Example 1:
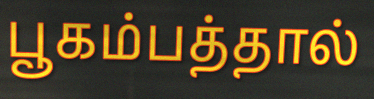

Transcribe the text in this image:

பூகம்பத்தால்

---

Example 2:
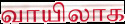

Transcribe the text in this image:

வாயிலாக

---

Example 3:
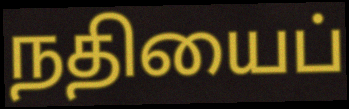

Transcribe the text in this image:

நதியைப்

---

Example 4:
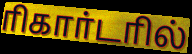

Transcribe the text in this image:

ரிகார்டரில்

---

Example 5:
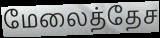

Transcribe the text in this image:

மேலைத்தேச